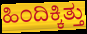
ಹಿಂದಿಕ್ಕಿತ್ತು